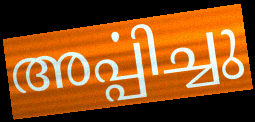
അൎപ്പിച്ചു